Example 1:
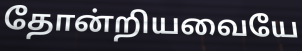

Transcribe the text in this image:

தோன்றியவையே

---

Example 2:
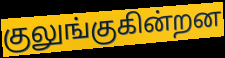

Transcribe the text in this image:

குலுங்குகின்றன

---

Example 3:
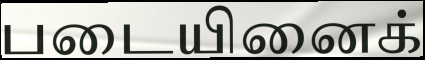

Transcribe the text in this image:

படையினைக்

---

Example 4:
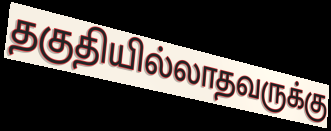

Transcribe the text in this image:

தகுதியில்லாதவருக்கு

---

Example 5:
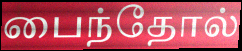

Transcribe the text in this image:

பைந்தோல்